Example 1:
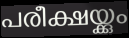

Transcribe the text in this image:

പരീക്ഷയ്ക്കും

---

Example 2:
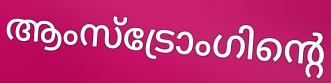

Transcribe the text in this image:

ആംസ്ട്രോംഗിന്റെ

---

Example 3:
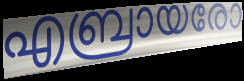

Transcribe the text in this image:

എബ്രായരോ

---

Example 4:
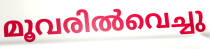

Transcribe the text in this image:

മൂവരിൽവെച്ചു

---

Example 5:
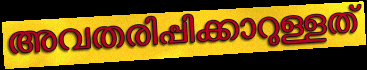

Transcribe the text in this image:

അവതരിപ്പിക്കാറുള്ളത്